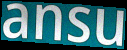
ansu